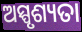
ଅସ୍ପୃଶ୍ୟତା